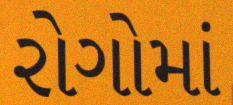
રોગોમાં